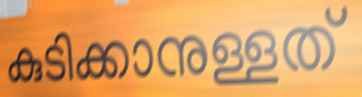
കുടിക്കാനുള്ളത്